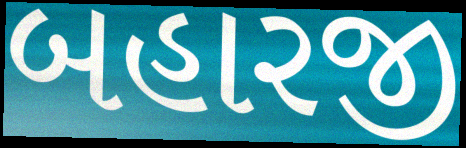
બહારજી